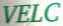
VELC